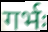
गर्भः